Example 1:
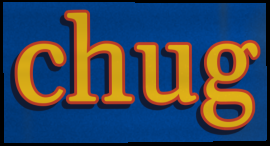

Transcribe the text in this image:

chug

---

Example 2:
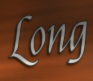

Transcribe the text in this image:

Long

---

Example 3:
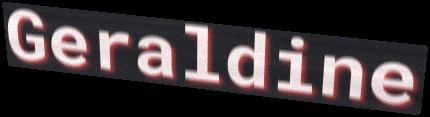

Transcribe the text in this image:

Geraldine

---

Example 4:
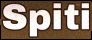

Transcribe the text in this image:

Spiti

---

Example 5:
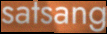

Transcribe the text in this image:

satsang